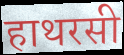
हाथरसी